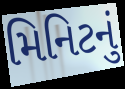
મિનિટનું